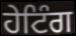
ਹੇਟਿੰਗ